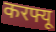
करफ्यू